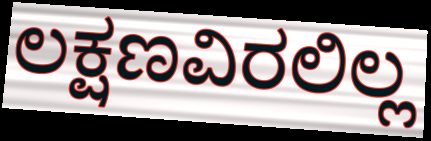
ಲಕ್ಷಣವಿರಲಿಲ್ಲ